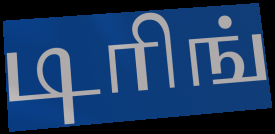
டிரிங்